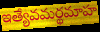
ఇత్యేవమర్థమాహ